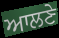
ਆਲਣੇ